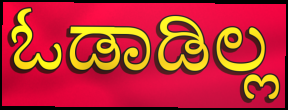
ಓಡಾಡಿಲ್ಲ